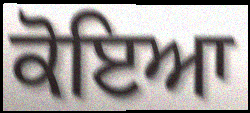
ਕੋਇਆ